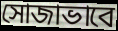
সোজাভাবে